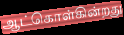
ஆட்கொள்கின்றது